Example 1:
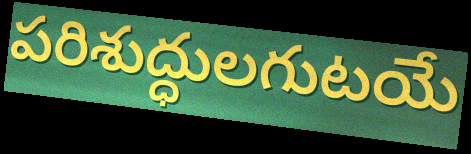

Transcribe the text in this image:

పరిశుద్ధులగుటయే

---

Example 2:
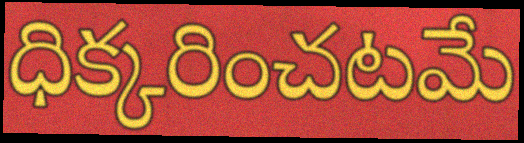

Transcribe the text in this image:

ధిక్కరించటమే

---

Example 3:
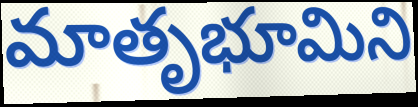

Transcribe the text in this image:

మాతృభూమిని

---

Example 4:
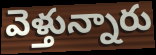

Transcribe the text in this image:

వెళ్తున్నారు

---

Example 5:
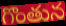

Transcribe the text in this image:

గొంతున